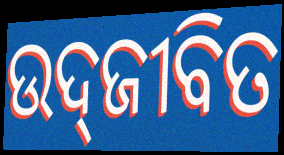
ଉଦ୍‌ଜୀବିତ